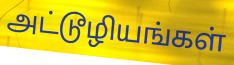
அட்டூழியங்கள்